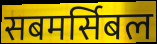
सबमर्सिबल